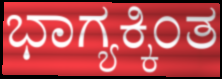
ಭಾಗ್ಯಕ್ಕಿಂತ